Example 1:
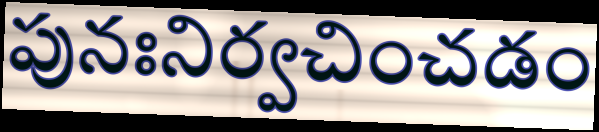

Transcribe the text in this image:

పునఃనిర్వచించడం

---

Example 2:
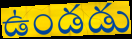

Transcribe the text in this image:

ఉండడు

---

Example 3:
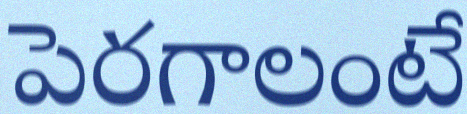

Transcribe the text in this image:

పెరగాలంటే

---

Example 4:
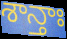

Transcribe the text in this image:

శాన్తాః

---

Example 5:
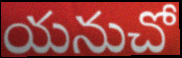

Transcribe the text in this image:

యనుచో